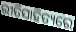
ରୀତିସାହିତ୍ୟରେ